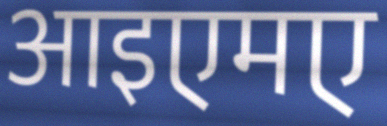
आइएमए